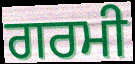
ਗਰਮੀ